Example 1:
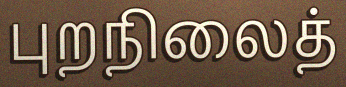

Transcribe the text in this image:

புறநிலைத்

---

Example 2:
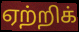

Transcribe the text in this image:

ஏற்றிக்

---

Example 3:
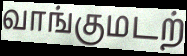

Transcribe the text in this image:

வாங்குமடற்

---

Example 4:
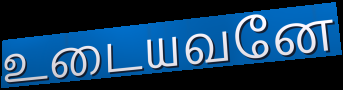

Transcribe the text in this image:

உடையவனே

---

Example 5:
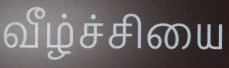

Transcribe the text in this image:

வீழ்ச்சியை